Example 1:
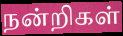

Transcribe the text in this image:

நன்றிகள்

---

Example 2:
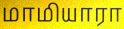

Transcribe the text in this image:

மாமியாரா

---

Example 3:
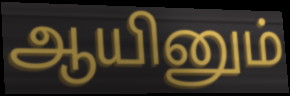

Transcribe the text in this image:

ஆயினும்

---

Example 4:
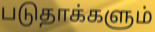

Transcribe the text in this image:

படுதாக்களும்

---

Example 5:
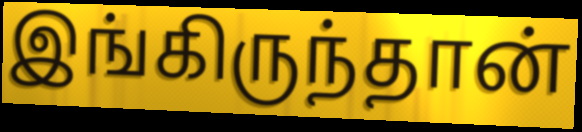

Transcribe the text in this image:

இங்கிருந்தான்